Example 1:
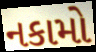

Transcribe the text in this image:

નકામો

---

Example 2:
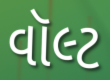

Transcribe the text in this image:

વૉલ્ટ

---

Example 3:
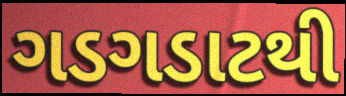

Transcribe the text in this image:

ગડગડાટથી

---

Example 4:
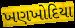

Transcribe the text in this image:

ખણખોદિયા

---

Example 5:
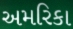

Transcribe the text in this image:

અમરિકા